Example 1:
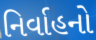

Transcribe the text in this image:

નિર્વાહનો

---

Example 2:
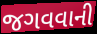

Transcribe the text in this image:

જગવવાની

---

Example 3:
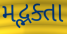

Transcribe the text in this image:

મદ્ભક્તા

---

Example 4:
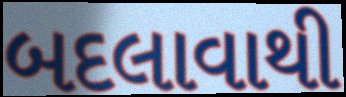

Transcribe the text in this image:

બદલાવાથી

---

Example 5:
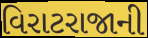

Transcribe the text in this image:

વિરાટરાજાની